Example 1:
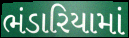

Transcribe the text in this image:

ભંડારિયામાં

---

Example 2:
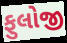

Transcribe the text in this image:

ફુલોજી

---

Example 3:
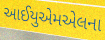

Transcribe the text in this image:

આઈયુએમએલના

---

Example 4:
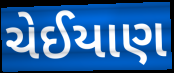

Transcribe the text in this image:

ચેઈયાણ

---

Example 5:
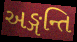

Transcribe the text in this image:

અઙ્ગન્તિ